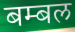
बम्बल